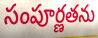
సంపూర్ణతను